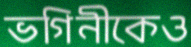
ভগিনীকেও